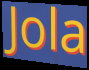
Jola